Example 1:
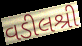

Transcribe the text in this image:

વડીલશ્રી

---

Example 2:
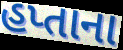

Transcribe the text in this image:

હપ્તાના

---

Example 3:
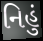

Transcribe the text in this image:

નિહું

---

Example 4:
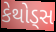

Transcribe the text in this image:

કેથોડ્સ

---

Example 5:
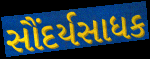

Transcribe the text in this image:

સૌંદર્યસાધક